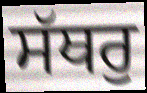
ਸੱਥਰੁ